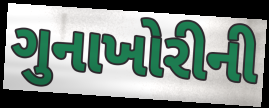
ગુનાખોરીની